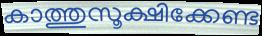
കാത്തുസൂക്ഷിക്കേണ്ട